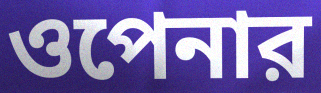
ওপেনার